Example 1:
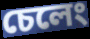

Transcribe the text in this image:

চেলেং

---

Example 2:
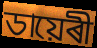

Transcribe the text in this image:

ডায়েৰী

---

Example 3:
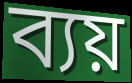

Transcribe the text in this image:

ব্যয়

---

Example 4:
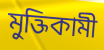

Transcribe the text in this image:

মুক্তিকামী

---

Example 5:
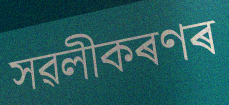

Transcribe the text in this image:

সৱলীকৰণৰ